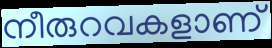
നീരുറവകളാണ്